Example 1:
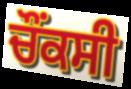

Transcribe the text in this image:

ਚੌਂਕਸੀ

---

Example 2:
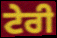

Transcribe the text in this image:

ਟੇਰੀ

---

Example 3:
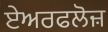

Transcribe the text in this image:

ਏਅਰਫਲੋਜ਼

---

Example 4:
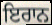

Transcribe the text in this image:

ਇਰਾਨ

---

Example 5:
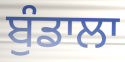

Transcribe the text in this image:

ਬੁੰਡਾਲਾ